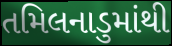
તમિલનાડુમાંથી